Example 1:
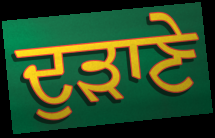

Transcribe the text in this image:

ਦੁੜਾਣੇ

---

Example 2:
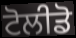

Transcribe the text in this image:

ਟੋਲੀਡੋ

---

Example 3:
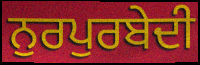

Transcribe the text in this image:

ਨੁਰਪੁਰਬੇਦੀ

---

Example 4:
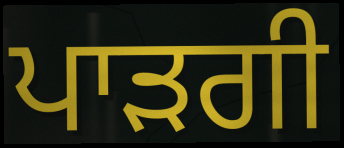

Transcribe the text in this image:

ਪਾੜਗੀ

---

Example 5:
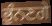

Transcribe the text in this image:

ਭੁੰਨਣਗੇ